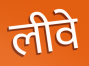
लीवे